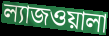
ল্যাজওয়ালা